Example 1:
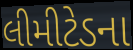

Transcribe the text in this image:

લીમીટેડના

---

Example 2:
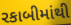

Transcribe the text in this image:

રકાબીમાંથી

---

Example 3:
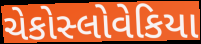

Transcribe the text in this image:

ચેકોસ્લોવેકિયા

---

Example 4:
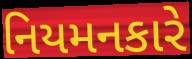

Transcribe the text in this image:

નિયમનકારે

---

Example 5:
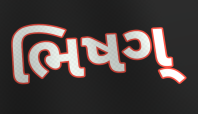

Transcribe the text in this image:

ભિષગ્